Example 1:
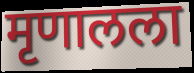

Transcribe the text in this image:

मृणालला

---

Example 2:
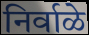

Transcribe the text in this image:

निर्वाळे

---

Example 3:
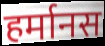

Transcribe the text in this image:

हर्मानस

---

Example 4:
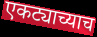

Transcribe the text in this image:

एकट्याच्याच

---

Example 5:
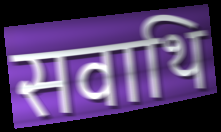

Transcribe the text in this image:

सवाथि